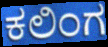
ಕಲಿಂಗ